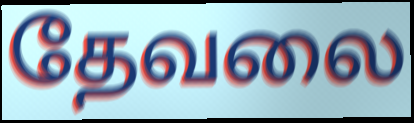
தேவலை